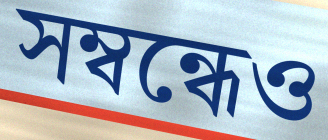
সম্বন্ধেও